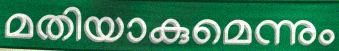
മതിയാകുമെന്നും